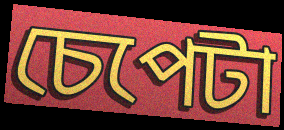
চেপেটা